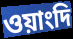
ওয়াংদি